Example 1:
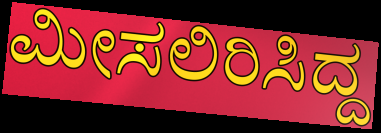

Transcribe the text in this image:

ಮೀಸಲಿರಿಸಿದ್ದ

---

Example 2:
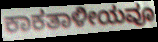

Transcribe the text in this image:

ಕಾಕತಾಳೀಯವೂ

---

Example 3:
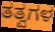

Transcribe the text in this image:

ತತ್ವಗಳ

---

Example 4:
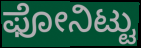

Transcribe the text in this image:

ಫೋನಿಟ್ಟು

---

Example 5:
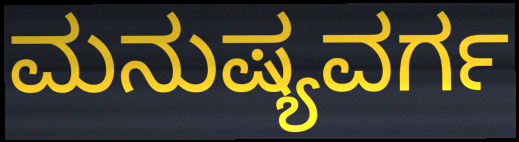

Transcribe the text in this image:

ಮನುಷ್ಯವರ್ಗ